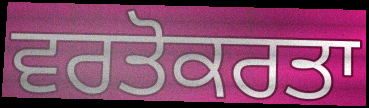
ਵਰਤੋਕਰਤਾ